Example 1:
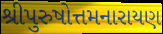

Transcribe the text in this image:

શ્રીપુરુષોત્તમનારાયણ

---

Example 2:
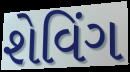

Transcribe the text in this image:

શેવિંગ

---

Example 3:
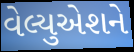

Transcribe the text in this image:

વેલ્યુએશને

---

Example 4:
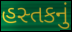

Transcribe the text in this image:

હસ્તકનું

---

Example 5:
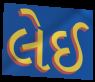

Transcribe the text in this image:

લેઈ